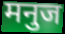
मनुज